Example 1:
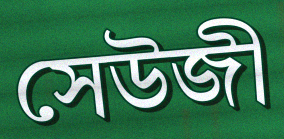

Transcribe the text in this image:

সেউজী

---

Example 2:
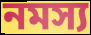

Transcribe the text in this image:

নমস্য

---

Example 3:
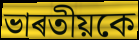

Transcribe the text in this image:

ভাৰতীয়কে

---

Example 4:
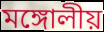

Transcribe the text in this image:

মঙ্গোলীয়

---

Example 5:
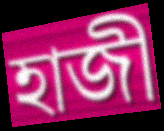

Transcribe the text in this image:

হাজী